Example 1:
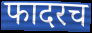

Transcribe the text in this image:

फादरच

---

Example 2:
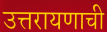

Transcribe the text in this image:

उत्तरायणाची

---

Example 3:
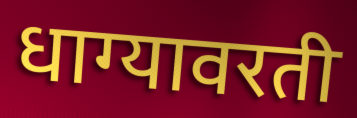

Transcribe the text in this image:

धाग्यावरती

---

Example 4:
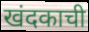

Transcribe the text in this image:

खंदकाची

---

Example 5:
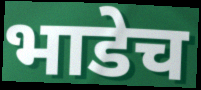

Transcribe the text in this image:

भाडेच